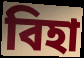
বিহা